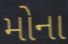
મોના